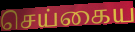
செய்கைய